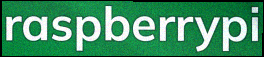
raspberrypi